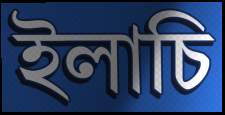
ইলাচি